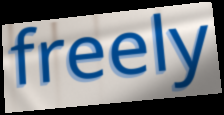
freely